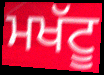
ਮਖੱਟੂ